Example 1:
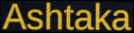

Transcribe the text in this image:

Ashtaka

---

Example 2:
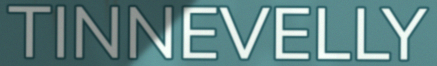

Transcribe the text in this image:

TINNEVELLY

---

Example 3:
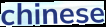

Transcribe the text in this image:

chinese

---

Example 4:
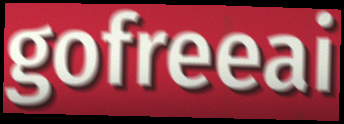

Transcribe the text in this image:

gofreeai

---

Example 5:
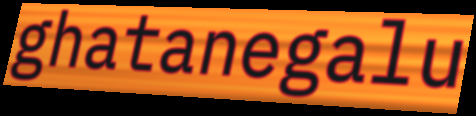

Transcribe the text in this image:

ghatanegalu